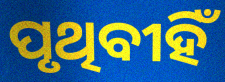
ପୃଥିବୀହିଁ